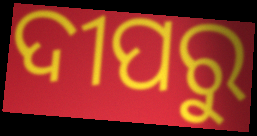
ଦୀପରୁ